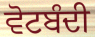
ਵੋਟਬੰਦੀ